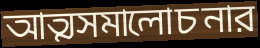
আত্মসমালোচনার